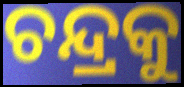
ଚନ୍ଦ୍ରକୁ